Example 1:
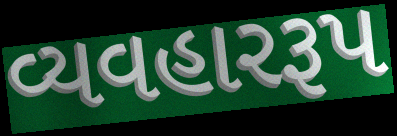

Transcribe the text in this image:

વ્યવહારરૂપ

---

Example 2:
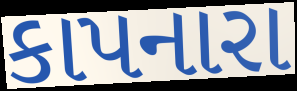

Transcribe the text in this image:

કાપનારા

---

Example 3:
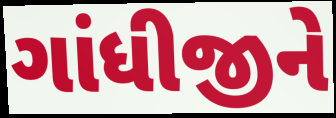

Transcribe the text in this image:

ગાંધીજીને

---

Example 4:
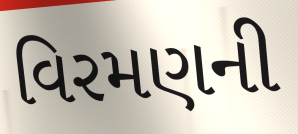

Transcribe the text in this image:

વિરમણની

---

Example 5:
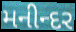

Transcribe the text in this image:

મનીન્દર